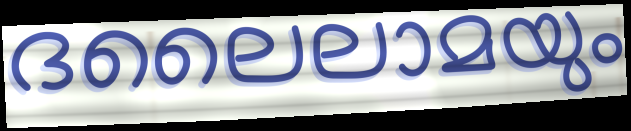
ദലൈലാമയും